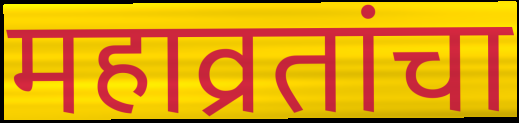
महाव्रतांचा